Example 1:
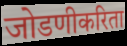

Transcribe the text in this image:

जोडणीकरिता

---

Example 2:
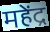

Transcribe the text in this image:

महेंद्र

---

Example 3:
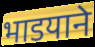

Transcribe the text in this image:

भाडयाने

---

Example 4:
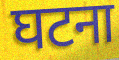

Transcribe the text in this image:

घटना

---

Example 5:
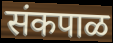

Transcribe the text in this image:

संकपाळ